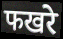
फखरे